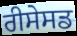
ਰੀਸੇਸਡ